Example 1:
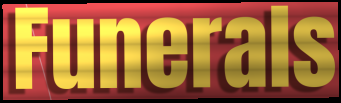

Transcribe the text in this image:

Funerals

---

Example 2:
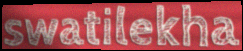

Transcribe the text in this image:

swatilekha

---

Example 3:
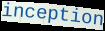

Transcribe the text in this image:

inception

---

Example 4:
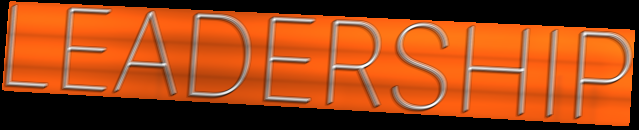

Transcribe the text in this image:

LEADERSHIP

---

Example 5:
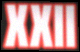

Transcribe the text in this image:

XXII